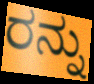
ರನ್ನು